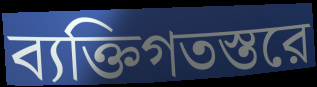
ব্যক্তিগতস্তরে